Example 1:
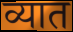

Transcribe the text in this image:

व्यात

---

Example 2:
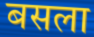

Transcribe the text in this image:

बसला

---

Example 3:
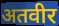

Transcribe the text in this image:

अतवीर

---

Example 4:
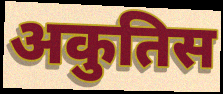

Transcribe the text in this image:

अकुतिस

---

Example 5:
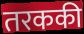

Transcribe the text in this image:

तरककी